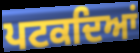
ਪਟਕਦਿਆਂ